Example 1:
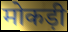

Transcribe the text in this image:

मोकड़ी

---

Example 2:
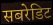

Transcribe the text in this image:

सबरेडिट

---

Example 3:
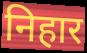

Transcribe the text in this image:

निहार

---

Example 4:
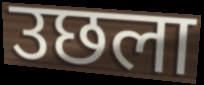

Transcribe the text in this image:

उछला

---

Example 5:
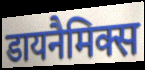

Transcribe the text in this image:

डायनैमिक्स